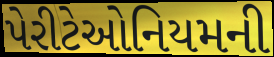
પેરીટેઓનિયમની